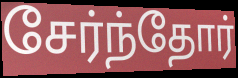
சேர்ந்தோர்